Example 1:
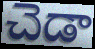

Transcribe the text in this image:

చెడా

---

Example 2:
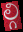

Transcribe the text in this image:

ల్గి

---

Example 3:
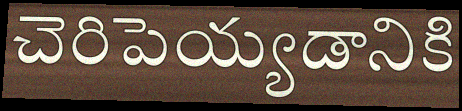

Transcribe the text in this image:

చెరిపెయ్యడానికి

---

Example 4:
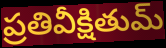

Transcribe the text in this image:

ప్రతివీక్షితుమ్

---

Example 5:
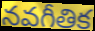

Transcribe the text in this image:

నవగీతిక